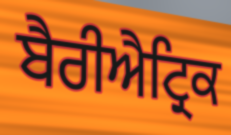
ਬੈਰੀਐਟ੍ਰਿਕ